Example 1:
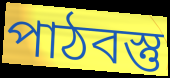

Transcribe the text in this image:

পাঠবস্তু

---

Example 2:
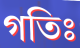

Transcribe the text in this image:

গতিঃ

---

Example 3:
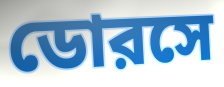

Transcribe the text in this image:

ডোরসে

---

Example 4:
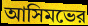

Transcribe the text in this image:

আসিমভের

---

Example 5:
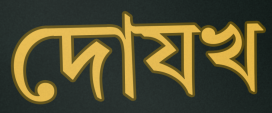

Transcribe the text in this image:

দোযখ